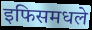
इफिसमधले